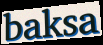
baksa